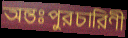
অন্তঃপুরচারিণী